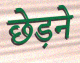
छेड़ने